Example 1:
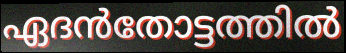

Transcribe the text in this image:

ഏദൻതോട്ടത്തിൽ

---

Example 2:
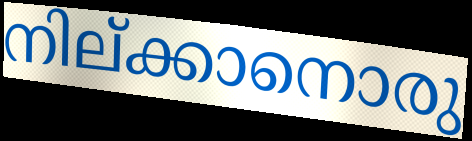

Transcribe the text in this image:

നില്ക്കാനൊരു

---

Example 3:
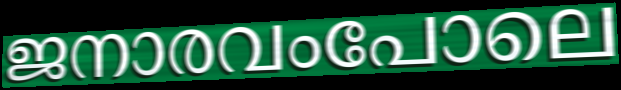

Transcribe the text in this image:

ജനാരവംപോലെ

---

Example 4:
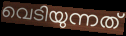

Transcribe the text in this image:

വെടിയുന്നത്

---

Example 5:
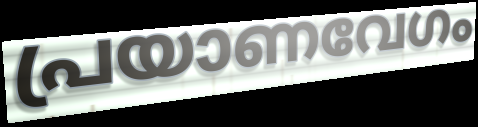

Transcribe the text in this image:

പ്രയാണവേഗം